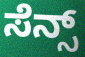
ಸೆನ್ಸ್